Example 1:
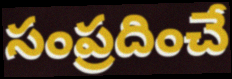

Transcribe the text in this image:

సంప్రదించే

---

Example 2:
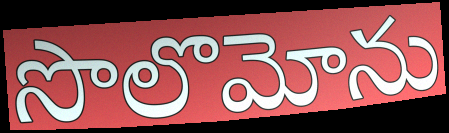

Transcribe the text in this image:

సొలొమోను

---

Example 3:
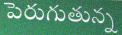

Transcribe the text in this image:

పెరుగుతున్న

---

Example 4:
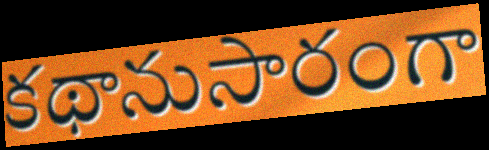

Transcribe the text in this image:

కథానుసారంగా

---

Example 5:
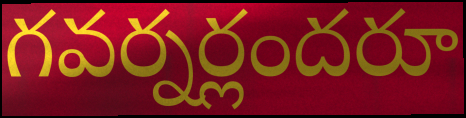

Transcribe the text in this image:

గవర్నర్లందరూ